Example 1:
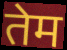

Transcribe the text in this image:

तेम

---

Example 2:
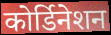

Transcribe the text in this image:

कोर्डिनेशन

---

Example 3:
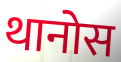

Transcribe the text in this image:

थानोस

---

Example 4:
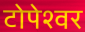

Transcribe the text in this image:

टोपेश्वर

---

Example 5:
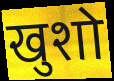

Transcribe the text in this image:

खुशो